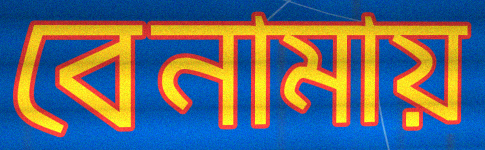
বেনামায়